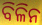
ବିଳିନ